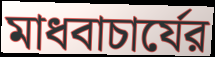
মাধবাচার্যের